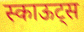
स्काऊट्स